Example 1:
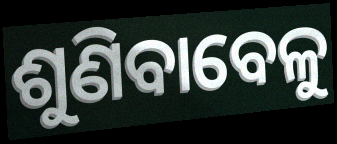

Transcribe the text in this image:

ଶୁଣିବାବେଳୁ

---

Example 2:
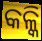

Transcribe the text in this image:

କଳ୍କି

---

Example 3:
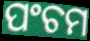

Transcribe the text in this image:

ପଂଚମ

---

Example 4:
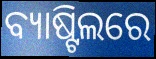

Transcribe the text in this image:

ବ୍ୟାଷ୍ଟିଲରେ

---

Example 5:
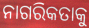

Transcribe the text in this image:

ନାଗରିକତାକୁ